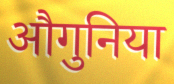
औगुनिया